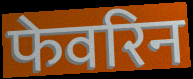
फेवरिन